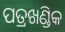
ପତ୍ରଖଣ୍ଡିକ